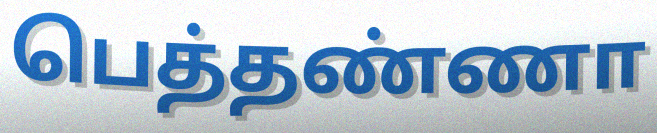
பெத்தண்ணா